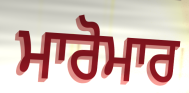
ਮਾਰੋਮਾਰ